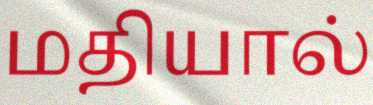
மதியால்